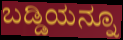
ಬಡ್ಡಿಯನ್ನೂ